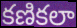
కణికలా